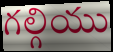
గల్గియు